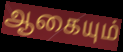
ஆகையும்